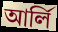
আর্লি